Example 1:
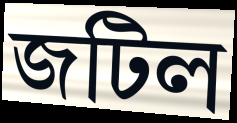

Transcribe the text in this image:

জটিল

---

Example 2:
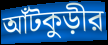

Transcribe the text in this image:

আঁটকুড়ীর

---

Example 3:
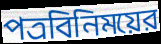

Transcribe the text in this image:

পত্রবিনিময়ের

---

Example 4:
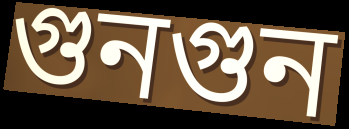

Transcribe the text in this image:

গুনগুন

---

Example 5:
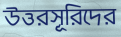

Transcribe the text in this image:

উত্তরসূরিদের